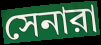
সেনারা